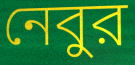
নেবুর